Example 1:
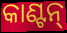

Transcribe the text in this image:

କାଣ୍ଟନ୍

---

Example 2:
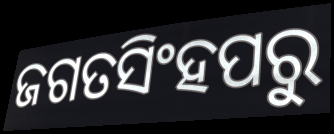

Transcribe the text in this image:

ଜଗତସିଂହପରୁ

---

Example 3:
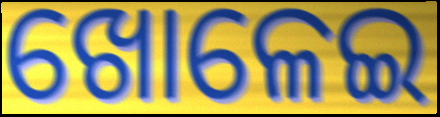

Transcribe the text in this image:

ଖୋଳେଇ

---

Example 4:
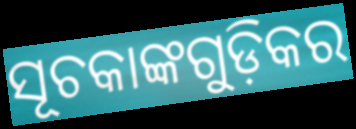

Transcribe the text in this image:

ସୂଚକାଙ୍କଗୁଡ଼ିକର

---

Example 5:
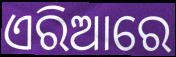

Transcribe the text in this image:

ଏରିଆରେ